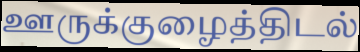
ஊருக்குழைத்திடல்